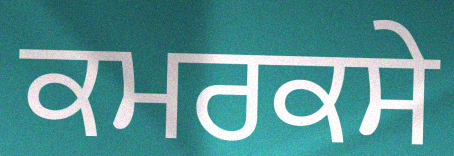
ਕਮਰਕਸੇ